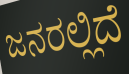
ಜನರಲ್ಲಿದೆ